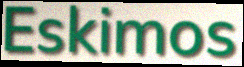
Eskimos